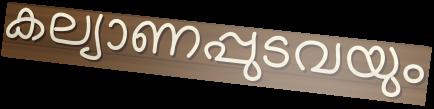
കല്യാണപ്പുടവയും